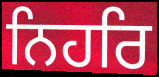
ਨਿਹਰਿ